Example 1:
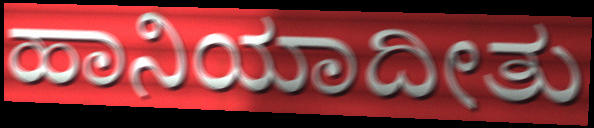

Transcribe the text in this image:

ಹಾನಿಯಾದೀತು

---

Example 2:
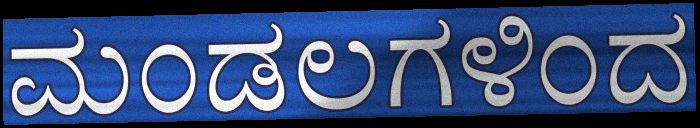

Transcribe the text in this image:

ಮಂಡಲಗಳಿಂದ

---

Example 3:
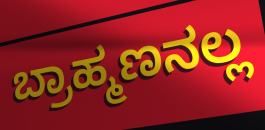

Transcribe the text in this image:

ಬ್ರಾಹ್ಮಣನಲ್ಲ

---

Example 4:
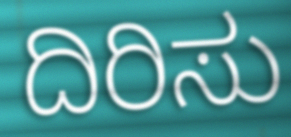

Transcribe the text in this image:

ದಿರಿಸು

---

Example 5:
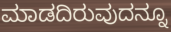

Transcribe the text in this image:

ಮಾಡದಿರುವುದನ್ನೂ